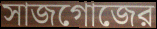
সাজগোজের